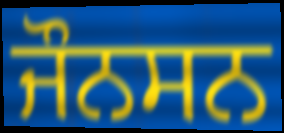
ਜੌਨਸਨ